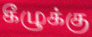
கீழுக்கு